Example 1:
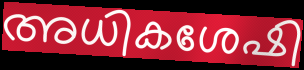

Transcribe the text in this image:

അധികശേഷി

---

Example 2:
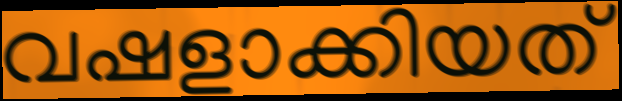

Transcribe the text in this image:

വഷളാക്കിയത്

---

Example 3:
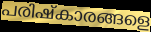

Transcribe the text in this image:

പരിഷ്‌കാരങ്ങളെ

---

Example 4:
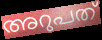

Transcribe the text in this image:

അറുപത്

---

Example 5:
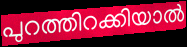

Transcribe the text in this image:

പുറത്തിറക്കിയാൽ